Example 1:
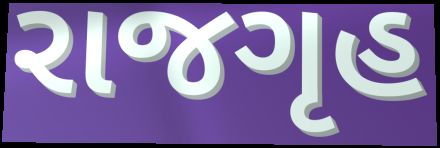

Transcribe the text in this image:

રાજગૃહ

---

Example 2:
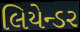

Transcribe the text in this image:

લિયેન્ડર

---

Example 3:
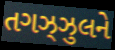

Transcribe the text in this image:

તગઝ્ઝુલને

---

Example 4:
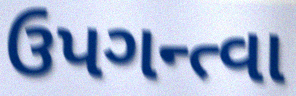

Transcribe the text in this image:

ઉપગન્ત્વા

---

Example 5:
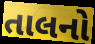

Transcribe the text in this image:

તાલનો